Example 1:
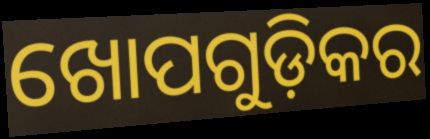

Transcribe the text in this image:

ଖୋପଗୁଡ଼ିକର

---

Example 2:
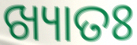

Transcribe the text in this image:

ଖ୍ୟାତଃ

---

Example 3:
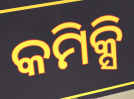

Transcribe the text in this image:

କମିକ୍ସି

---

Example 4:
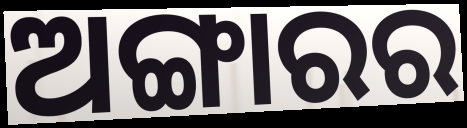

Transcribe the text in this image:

ଅଙ୍ଗାରର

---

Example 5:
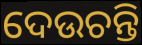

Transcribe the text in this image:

ଦେଉଚନ୍ତି